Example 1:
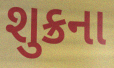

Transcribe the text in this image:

શુક્રના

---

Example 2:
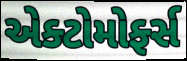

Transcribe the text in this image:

એક્ટોમોર્ફ્સ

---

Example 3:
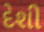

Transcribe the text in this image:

દેશી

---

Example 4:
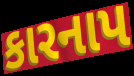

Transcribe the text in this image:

કારનાપ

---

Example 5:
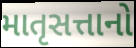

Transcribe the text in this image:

માતૃસત્તાનો